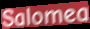
Salomea